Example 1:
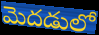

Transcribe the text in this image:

మెదడులో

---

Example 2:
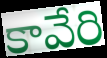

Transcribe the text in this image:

కావేరి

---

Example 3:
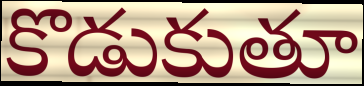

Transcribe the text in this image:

కొడుకుతూ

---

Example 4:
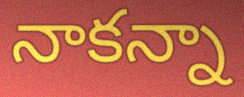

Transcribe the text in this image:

నాకన్నా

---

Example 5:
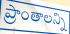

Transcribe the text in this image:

ప్రాంతాలన్ని